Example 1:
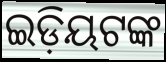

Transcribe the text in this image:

ଇଡ଼ିୟଟଙ୍କ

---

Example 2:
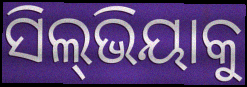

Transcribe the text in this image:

ସିଲ୍‍ଭିୟାକୁ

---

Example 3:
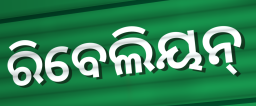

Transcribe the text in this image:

ରିବେଲିୟନ୍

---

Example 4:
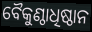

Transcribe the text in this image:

ବୈକୁଣ୍ଠାଧିଷ୍ଠାନ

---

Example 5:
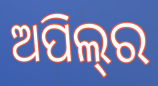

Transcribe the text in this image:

ଅପିଲ୍‌ର